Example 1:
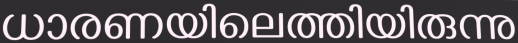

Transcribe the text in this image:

ധാരണയിലെത്തിയിരുന്നു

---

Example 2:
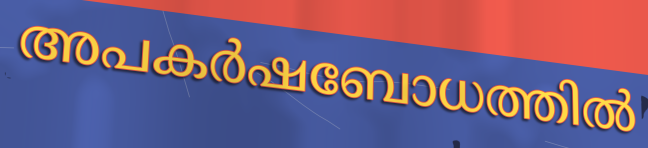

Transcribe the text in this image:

അപകർഷബോധത്തിൽ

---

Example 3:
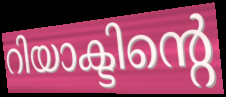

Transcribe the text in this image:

റിയാക്ടിന്റെ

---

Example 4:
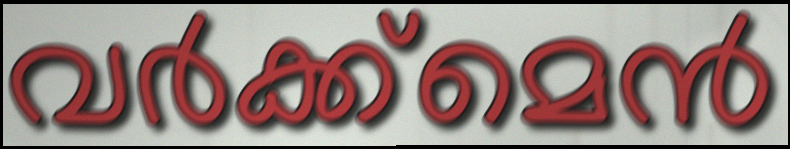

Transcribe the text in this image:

വർക്ക്മെൻ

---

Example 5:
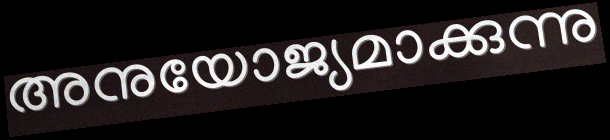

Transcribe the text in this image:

അനുയോജ്യമാക്കുന്നു